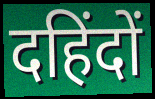
दहिंदों